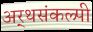
अर्थसंकल्पी